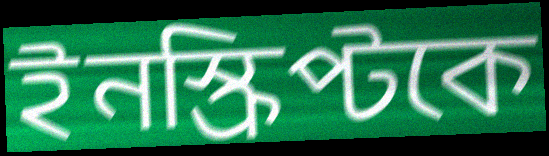
ইনস্ক্রিপ্টকে